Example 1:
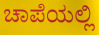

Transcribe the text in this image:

ಚಾಪೆಯಲ್ಲಿ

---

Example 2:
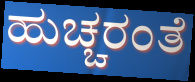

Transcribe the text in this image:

ಹುಚ್ಚರಂತೆ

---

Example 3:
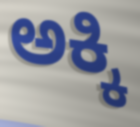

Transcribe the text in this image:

ಅಕ್ಕಿ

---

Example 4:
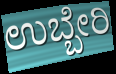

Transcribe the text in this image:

ಉಬ್ಬೇರಿ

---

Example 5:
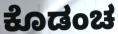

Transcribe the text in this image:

ಕೊಡಂಚ